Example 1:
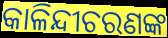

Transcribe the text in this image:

କାଳିନ୍ଦୀଚରଣଙ୍କ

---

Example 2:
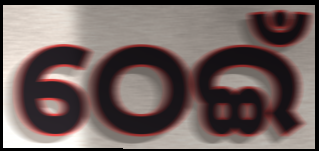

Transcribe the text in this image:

ଠେଇଁ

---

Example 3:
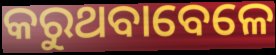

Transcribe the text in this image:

କରୁଥବାବେଳେ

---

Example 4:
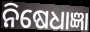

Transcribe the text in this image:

ନିଷେଧାଜ୍ଞା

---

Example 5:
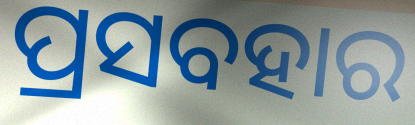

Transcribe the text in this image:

ପ୍ରସବହାର